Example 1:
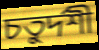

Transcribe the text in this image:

চতুৰ্দশী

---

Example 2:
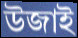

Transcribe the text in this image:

উজাই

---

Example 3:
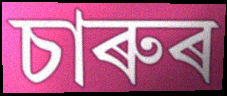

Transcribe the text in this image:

চাৰুৰ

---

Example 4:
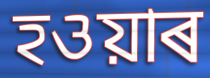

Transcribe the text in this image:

হওয়াৰ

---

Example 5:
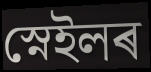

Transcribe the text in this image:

স্নেইলৰ